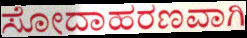
ಸೋದಾಹರಣವಾಗಿ